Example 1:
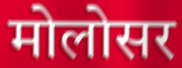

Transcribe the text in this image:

मोलोसर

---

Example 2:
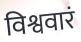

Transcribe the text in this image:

विश्ववारं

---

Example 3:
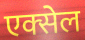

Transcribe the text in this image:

एक्‍सेल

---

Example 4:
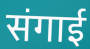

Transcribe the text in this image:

संगाई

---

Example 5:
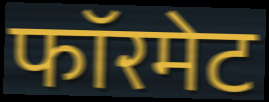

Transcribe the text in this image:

फॉरमेट